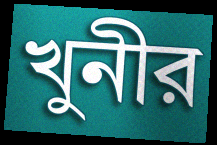
খুনীর